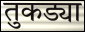
तुकड्या